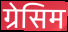
ग्रेसिम